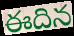
ఈదిన